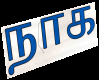
நாக